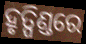
ହୃତ୍ପିଣ୍ଡରେ